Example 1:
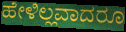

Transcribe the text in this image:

ಹೇಳಿಲ್ಲವಾದರೂ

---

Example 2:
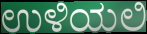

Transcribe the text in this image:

ಉಳಿಯಲಿ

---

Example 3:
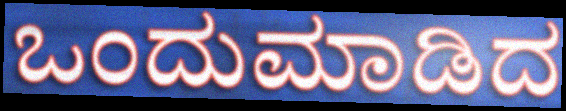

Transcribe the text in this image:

ಒಂದುಮಾಡಿದ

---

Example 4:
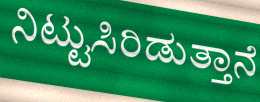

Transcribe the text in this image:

ನಿಟ್ಟುಸಿರಿಡುತ್ತಾನೆ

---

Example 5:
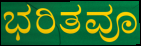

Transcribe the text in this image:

ಭರಿತವೂ